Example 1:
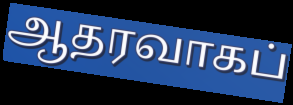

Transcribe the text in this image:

ஆதரவாகப்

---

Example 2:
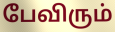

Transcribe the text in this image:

பேவிரும்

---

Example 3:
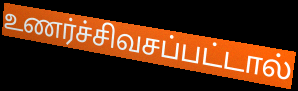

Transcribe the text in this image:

உணர்ச்சிவசப்பட்டால்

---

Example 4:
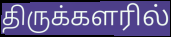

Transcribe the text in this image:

திருக்களரில்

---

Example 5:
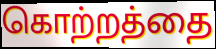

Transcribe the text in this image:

கொற்றத்தை